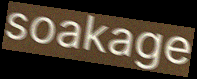
soakage